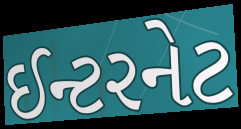
ઈન્ટરનેટ